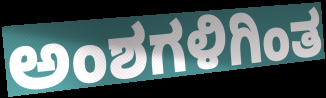
ಅಂಶಗಳಿಗಿಂತ